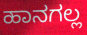
ಹಾನಗಲ್ಲ